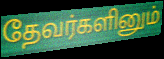
தேவர்களினும்